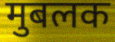
मुबलक